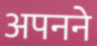
अपनने